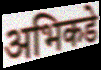
अभिकडे